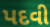
પદવી